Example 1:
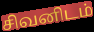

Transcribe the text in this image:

சிவனிடம்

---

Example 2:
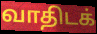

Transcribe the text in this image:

வாதிடக்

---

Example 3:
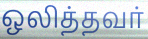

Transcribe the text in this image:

ஒலித்தவர்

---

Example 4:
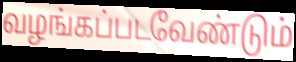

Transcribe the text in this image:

வழங்கப்படவேண்டும்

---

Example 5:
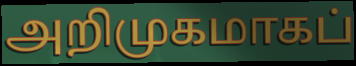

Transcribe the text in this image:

அறிமுகமாகப்